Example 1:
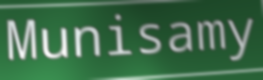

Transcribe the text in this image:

Munisamy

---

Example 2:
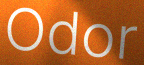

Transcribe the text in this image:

Odor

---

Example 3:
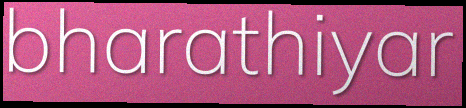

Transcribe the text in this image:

bharathiyar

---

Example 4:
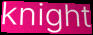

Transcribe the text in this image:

knight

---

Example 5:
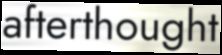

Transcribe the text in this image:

afterthought